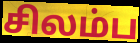
சிலம்ப